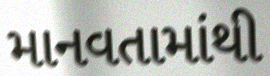
માનવતામાંથી